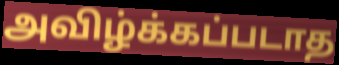
அவிழ்க்கப்படாத